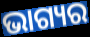
ଭାଗ୍ୟର